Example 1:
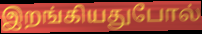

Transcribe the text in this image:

இறங்கியதுபோல்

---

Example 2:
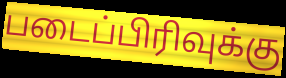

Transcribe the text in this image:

படைப்பிரிவுக்கு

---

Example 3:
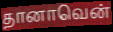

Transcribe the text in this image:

தானாவென்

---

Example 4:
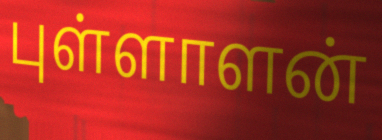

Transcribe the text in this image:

புள்ளாளன்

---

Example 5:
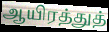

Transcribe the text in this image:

ஆயிரத்துத்